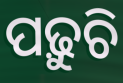
ପଢ଼ୁଚି